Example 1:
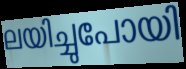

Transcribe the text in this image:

ലയിച്ചുപോയി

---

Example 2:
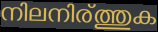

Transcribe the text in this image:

നിലനിര്ത്തുക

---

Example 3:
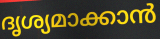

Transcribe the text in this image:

ദൃശ്യമാക്കാൻ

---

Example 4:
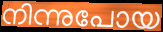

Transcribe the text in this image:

നിന്നുപോയ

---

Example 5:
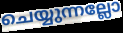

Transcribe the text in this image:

ചെയ്യുന്നല്ലോ